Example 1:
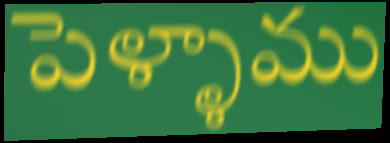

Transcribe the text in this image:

పెళ్ళాము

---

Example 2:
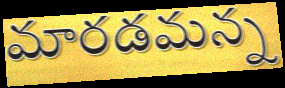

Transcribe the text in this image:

మారడమన్న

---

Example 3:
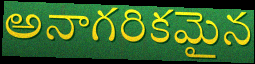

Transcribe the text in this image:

అనాగరికమైన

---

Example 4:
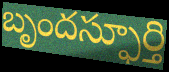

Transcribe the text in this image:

బృందస్ఫూర్తి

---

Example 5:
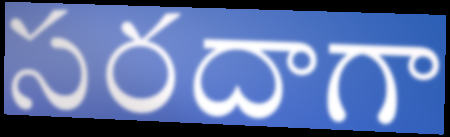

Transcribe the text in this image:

సరదాగా